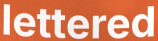
lettered